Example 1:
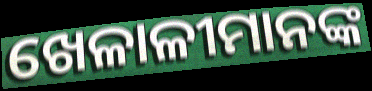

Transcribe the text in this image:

ଖେଳାଳୀମାନଙ୍କ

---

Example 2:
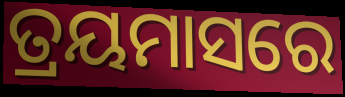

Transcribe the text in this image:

ତ୍ରୟମାସରେ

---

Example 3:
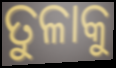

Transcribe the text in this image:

ତୁଳାକୁ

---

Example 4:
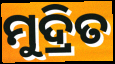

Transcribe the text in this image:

ମୁଦ୍ରିତ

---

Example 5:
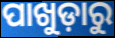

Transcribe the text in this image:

ପାଖୁଡ଼ାରୁ